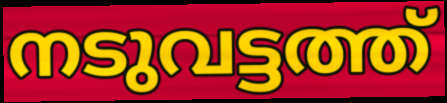
നടുവട്ടത്ത്